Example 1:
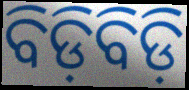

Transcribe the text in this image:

ବିଡ଼ିବିଡ଼ି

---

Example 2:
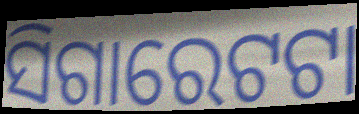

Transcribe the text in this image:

ସିଗାରେଟଟା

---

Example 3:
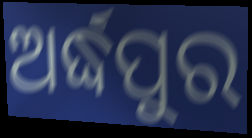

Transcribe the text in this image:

ଅର୍ଦ୍ଧପୁର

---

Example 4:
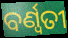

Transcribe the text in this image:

ବର୍ଣ୍ବତୀ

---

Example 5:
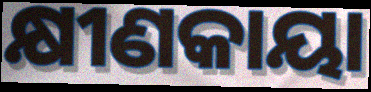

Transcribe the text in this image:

କ୍ଷୀଣକାୟା